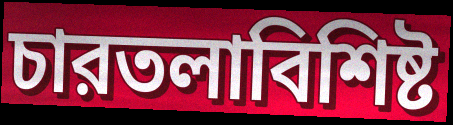
চারতলাবিশিষ্ট